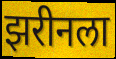
झरीनला